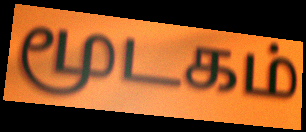
மூடகம்